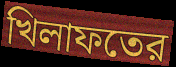
খিলাফতের